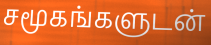
சமூகங்களுடன்